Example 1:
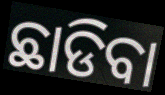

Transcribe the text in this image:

ଛାଡିବା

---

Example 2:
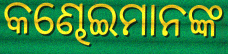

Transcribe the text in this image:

କଣ୍ଢେଇମାନଙ୍କ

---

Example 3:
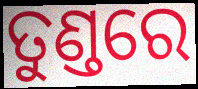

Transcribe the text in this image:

ତୁଣ୍ଡରେ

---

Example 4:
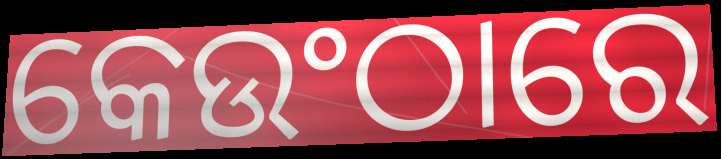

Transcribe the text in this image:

କେଉଂଠାରେ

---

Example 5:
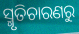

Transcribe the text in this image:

ସ୍ମୃତିଚାରଣରୁ